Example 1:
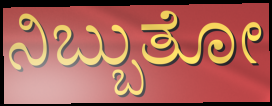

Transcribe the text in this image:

ನಿಬ್ಬುತೋ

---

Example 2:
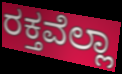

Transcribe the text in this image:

ರಕ್ತವೆಲ್ಲಾ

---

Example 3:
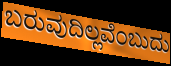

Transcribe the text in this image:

ಬರುವುದಿಲ್ಲವೆಂಬುದು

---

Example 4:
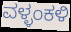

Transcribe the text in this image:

ವಳ್ಳಂಕಳಿ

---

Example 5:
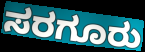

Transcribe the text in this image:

ಸರಗೂರು